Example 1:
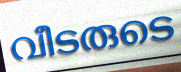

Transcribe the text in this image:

വീടരുടെ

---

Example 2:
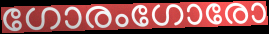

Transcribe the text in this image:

ഗോരംഗോരോ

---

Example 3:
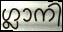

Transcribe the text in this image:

ഗ്ലാനി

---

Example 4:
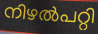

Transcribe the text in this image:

നിഴൽപറ്റി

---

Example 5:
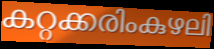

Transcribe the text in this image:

കറ്റക്കരിംകുഴലി